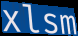
xlsm